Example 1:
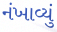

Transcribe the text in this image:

નંખાવ્યું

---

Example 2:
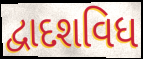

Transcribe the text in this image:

દ્વાદશવિધ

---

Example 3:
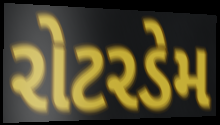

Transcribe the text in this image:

રોટરડેમ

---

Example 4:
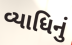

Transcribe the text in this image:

વ્યાધિનું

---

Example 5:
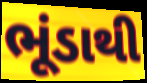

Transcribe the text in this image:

ભૂંડાથી